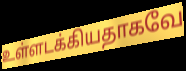
உள்ளடக்கியதாகவே